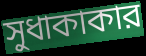
সুধাকাকার